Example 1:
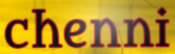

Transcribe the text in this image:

chenni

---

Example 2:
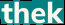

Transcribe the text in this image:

thek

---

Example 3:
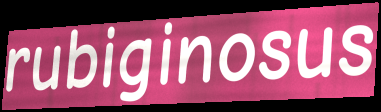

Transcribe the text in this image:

rubiginosus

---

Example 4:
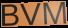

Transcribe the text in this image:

BVM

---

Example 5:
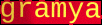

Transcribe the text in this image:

gramya